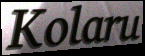
Kolaru